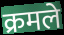
क्रमले